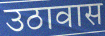
उठावास